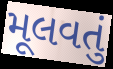
મૂલવતું